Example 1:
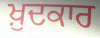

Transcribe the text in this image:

ਖ਼ੁਦਕਾਰ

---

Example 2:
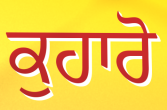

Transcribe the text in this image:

ਕੁਹਾਰੋ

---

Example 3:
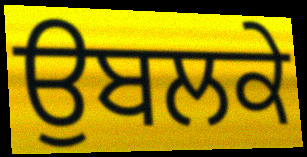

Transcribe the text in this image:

ਉਬਲਕੇ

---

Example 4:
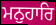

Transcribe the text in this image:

ਮਨੁਹਾਰਿ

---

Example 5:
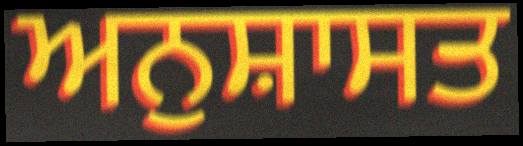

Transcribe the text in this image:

ਅਨੁਸ਼ਾਸਤ